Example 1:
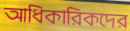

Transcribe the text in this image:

আধিকারিকদের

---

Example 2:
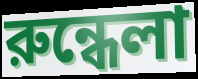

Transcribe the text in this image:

রুন্ধেলা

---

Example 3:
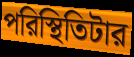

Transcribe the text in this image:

পরিস্থিতিটার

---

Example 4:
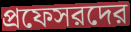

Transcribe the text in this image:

প্রফেসরদের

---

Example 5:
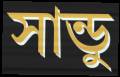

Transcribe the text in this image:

সান্ডু